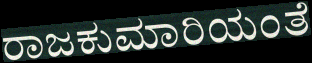
ರಾಜಕುಮಾರಿಯಂತೆ